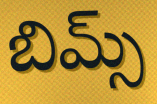
బిమ్స్